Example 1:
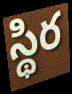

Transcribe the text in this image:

స్థిర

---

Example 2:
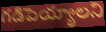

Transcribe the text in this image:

గడిపెయ్యాలని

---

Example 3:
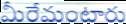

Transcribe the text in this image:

మీరేమంటారు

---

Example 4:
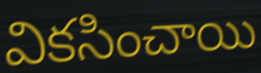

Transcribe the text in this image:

వికసించాయి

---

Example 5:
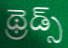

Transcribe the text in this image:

థ్రెడ్స్